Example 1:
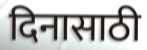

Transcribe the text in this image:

दिनासाठी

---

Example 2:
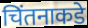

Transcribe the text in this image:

चिंतनाकडे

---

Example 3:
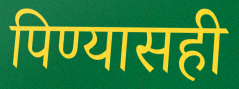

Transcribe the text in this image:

पिण्यासही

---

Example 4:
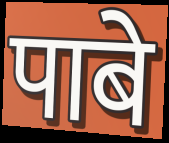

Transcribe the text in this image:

पाबे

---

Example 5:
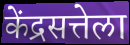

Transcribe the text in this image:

केंद्रसत्तेला